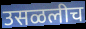
उसळलीच